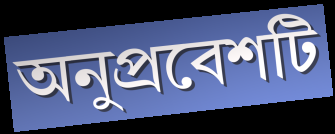
অনুপ্রবেশটি